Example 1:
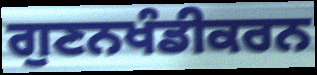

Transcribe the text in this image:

ਗੁਣਨਖੰਡੀਕਰਨ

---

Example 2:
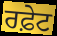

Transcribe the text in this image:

ਰਫ਼ੇਟ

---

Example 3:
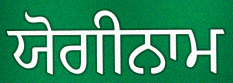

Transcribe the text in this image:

ਯੋਗੀਨਾਮ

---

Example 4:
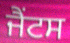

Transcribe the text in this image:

ਜੈਂਟਸ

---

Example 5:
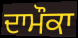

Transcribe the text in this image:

ਦਾਮੌਕਾ